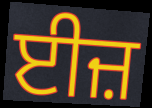
ਈਜ਼